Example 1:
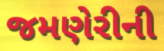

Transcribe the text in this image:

જમણેરીની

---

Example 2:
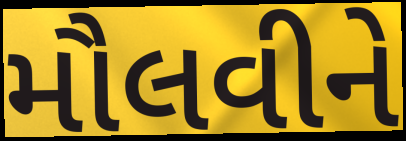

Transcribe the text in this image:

મૌલવીને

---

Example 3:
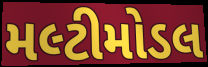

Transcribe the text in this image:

મલ્ટીમોડલ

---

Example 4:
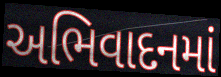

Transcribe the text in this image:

અભિવાદનમાં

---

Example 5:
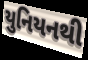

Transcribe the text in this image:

યુનિયનથી